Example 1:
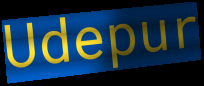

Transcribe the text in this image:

Udepur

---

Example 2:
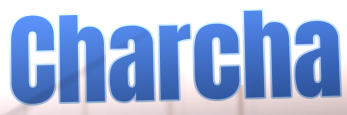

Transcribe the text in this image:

Charcha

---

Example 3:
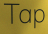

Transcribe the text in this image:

Tap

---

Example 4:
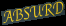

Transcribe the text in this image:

ABSURD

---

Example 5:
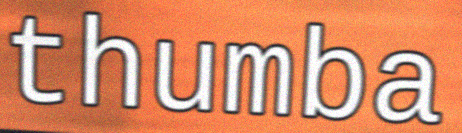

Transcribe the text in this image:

thumba